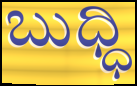
ಬುಧ್ಧಿ